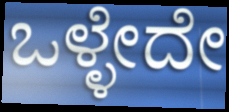
ಒಳ್ಳೇದೇ